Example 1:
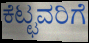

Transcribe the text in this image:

ಕೆಟ್ಟವರಿಗೆ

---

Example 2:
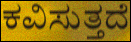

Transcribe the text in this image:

ಕವಿಸುತ್ತದೆ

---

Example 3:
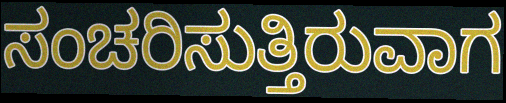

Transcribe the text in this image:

ಸಂಚರಿಸುತ್ತಿರುವಾಗ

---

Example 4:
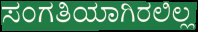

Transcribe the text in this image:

ಸಂಗತಿಯಾಗಿರಲಿಲ್ಲ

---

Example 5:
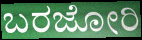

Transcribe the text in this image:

ಬರಜೋರಿ